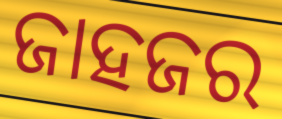
ଜାହଜର